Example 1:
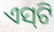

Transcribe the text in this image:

ଏସ୍‌ଟି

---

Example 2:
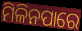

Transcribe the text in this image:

ମିଳିନପାରେ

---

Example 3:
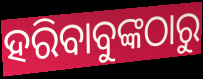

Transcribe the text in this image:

ହରିବାବୁଙ୍କଠାରୁ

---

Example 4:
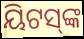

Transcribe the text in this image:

ୟିଟସ୍‌ଙ୍କ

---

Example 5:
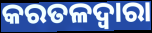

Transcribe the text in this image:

କରତଳଦ୍ଵାରା